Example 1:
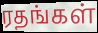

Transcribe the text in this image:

ரதங்கள்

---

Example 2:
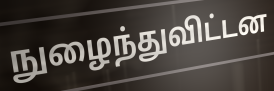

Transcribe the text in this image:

நுழைந்துவிட்டன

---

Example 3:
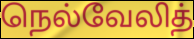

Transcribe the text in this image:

நெல்வேலித்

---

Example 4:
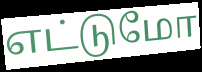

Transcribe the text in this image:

எட்டுமோ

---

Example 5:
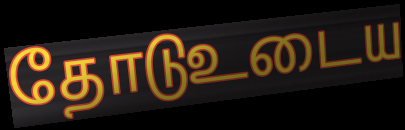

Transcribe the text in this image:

தோடுஉடைய